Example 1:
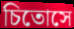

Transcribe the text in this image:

চিতোসে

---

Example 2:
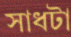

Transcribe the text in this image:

সাধটা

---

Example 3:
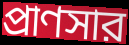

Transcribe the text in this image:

প্রাণসার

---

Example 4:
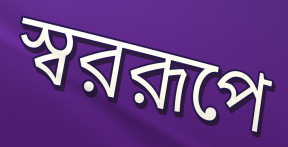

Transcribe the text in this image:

স্বররূপে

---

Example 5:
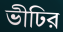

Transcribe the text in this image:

ভীঢির